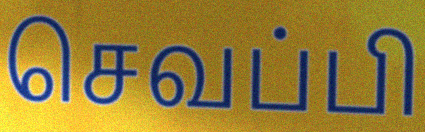
செவப்பி